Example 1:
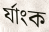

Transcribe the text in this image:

র্যাংক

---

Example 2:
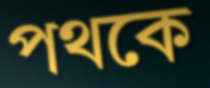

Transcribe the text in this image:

পথকে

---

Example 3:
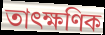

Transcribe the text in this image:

তাৎক্ষণিক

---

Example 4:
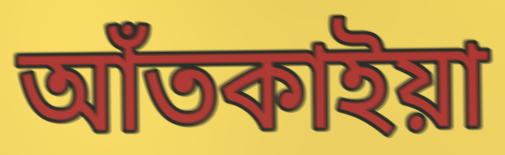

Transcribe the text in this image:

আঁতকাইয়া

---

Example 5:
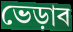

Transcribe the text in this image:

ভেড়াব